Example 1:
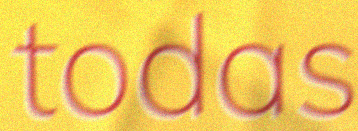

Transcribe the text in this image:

todas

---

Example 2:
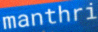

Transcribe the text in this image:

manthri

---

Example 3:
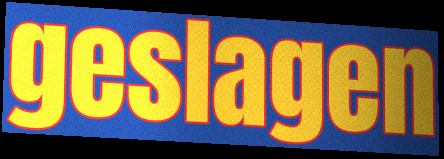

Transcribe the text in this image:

geslagen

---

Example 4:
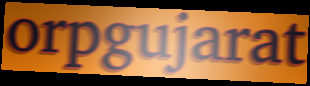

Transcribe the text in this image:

orpgujarat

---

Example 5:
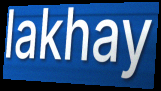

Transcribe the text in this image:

lakhay